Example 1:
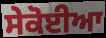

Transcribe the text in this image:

ਸੇਕੋਈਆ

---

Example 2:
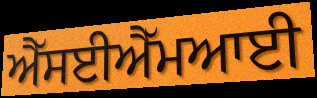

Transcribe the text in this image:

ਐੱਸਈਐੱਮਆਈ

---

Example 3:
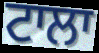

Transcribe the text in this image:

ਟਾਲਾ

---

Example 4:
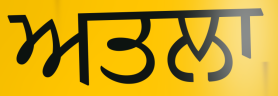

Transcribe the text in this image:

ਅਤਲਾ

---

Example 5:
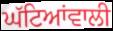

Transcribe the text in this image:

ਘੱਟਿਆਂਵਾਲੀ